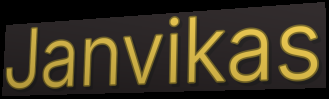
Janvikas